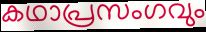
കഥാപ്രസംഗവും